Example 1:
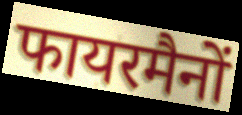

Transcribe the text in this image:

फायरमैनों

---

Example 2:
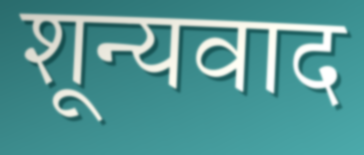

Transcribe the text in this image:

शून्यवाद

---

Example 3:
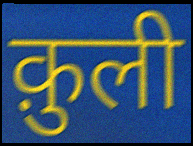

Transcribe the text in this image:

क़ुली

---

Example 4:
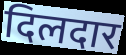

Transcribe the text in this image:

दिलदार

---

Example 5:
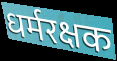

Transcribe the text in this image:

धर्मरक्षक